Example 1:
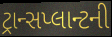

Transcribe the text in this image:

ટ્રાન્સપ્લાન્ટની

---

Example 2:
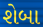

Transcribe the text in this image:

શેબા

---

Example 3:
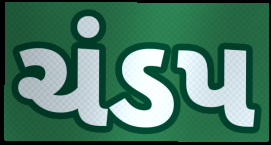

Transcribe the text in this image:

ચંડપ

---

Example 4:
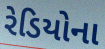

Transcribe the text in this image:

રેડિયોના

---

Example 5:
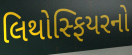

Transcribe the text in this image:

લિથોસ્ફિયરનો